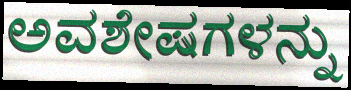
ಅವಶೇಷಗಳನ್ನು